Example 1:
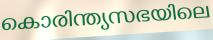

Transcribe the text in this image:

കൊരിന്ത്യസഭയിലെ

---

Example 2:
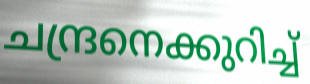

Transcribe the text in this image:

ചന്ദ്രനെക്കുറിച്ച്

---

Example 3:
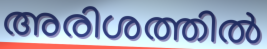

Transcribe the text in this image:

അരിശത്തിൽ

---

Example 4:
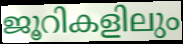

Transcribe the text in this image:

ജൂറികളിലും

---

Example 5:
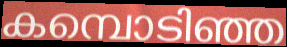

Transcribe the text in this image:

കമ്പൊടിഞ്ഞ